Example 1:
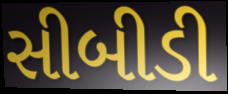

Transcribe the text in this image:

સીબીડી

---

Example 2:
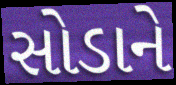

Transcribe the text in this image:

સોડાને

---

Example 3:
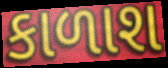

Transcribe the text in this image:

કાળાશ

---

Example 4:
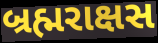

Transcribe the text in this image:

બ્રહ્મરાક્ષસ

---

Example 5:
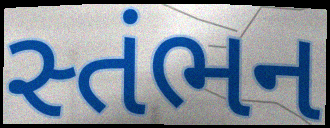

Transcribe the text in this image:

સ્તંભન